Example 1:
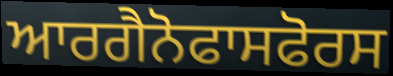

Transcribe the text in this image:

ਆਰਗੈਨੋਫਾਸਫੋਰਸ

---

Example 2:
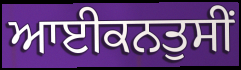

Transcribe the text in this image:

ਆਈਕਨਤੁਸੀਂ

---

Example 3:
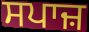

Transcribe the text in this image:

ਸਪਾਜ਼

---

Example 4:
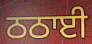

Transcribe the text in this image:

ਠਠਾਈ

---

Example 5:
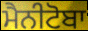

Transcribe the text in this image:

ਮੈਨੀਟੋਬਾ